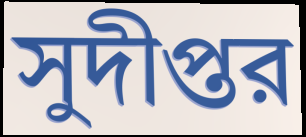
সুদীপ্তর